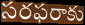
సరఫరాకు